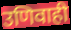
उणिवाही